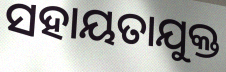
ସହାୟତାଯୁକ୍ତ